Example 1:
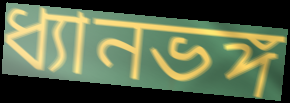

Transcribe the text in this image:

ধ্যানভঙ্গ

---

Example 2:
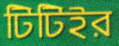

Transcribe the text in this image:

টিটিইর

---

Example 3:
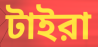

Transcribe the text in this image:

টাইরা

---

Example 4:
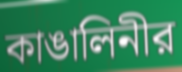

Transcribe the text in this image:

কাঙালিনীর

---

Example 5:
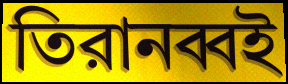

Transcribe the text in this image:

তিরানব্বই